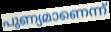
പുണ്യമാണെന്ന്